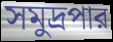
সমুদ্রপার